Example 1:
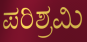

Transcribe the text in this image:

ಪರಿಶ್ರಮಿ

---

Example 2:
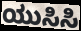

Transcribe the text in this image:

ಯುಸಿಸಿ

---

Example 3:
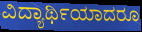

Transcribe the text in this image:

ವಿದ್ಯಾರ್ಥಿಯಾದರೂ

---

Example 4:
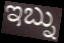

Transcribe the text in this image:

ಇಬ್ನು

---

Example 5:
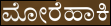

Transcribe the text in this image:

ಮೋರೆಹಾಕಿ